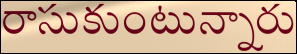
రాసుకుంటున్నారు